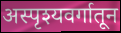
अस्पृश्यवर्गातून